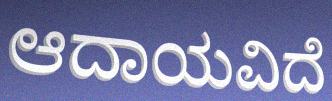
ಆದಾಯವಿದೆ